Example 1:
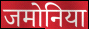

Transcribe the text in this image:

जमोनिया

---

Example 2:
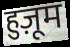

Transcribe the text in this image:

हुज़ूम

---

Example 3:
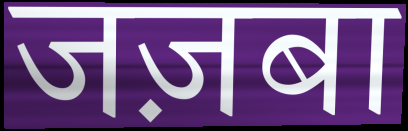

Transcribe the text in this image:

जज़बा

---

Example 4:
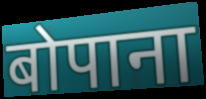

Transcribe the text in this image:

बोपाना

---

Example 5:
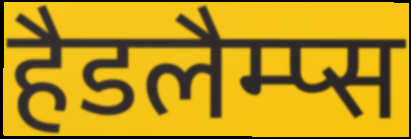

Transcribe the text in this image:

हैडलैम्प्स